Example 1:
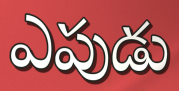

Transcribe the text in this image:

ఎపుడు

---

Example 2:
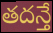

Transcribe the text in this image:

తదన్తే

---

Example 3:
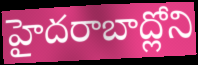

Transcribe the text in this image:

హైదరాబాద్లోని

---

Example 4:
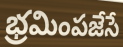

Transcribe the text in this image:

భ్రమింపజేసే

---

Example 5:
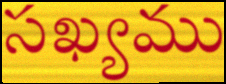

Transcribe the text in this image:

సఖ్యము